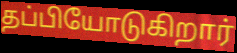
தப்பியோடுகிறார்